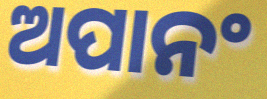
ଅପାନଂ